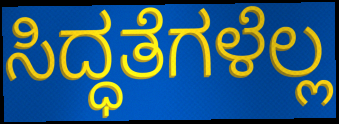
ಸಿದ್ಧತೆಗಳೆಲ್ಲ